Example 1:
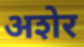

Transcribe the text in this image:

अशेर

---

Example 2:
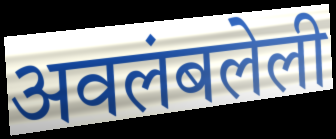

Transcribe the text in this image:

अवलंबलेली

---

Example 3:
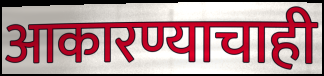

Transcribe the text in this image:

आकारण्याचाही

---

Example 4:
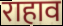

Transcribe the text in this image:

राहाव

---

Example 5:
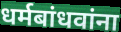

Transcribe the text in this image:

धर्मबांधवांना